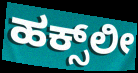
ಹಕ್ಸ್‌ಲೀ